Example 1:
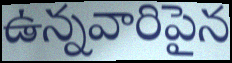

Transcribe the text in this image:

ఉన్నవారిపైన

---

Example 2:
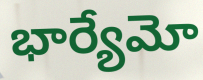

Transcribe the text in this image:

భార్యేమో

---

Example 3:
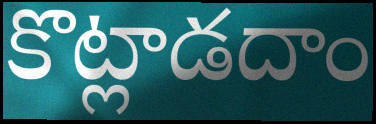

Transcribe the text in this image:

కొట్లాడదాం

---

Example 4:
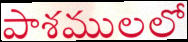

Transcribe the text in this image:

పాశములలో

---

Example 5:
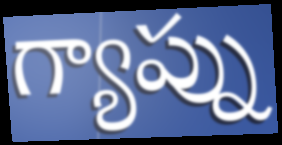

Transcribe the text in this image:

గ్యాప్ను